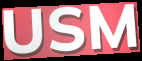
USM